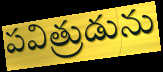
పవిత్రుడును